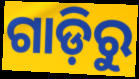
ଗାଡ଼ିରୁ